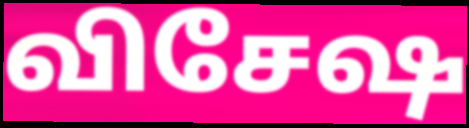
விசேஷ